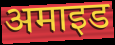
अमाइड